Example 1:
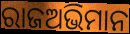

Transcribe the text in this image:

ରାଜଅଭିମାନ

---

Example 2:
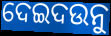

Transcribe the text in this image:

ଦେଇଦଉନୁ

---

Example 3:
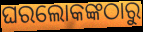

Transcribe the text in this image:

ଘରଲୋକଙ୍କଠାରୁ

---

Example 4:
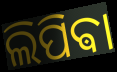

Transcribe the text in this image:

ଲିପିଵା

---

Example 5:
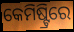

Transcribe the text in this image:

କେମିଷ୍ଟ୍ରିରେ